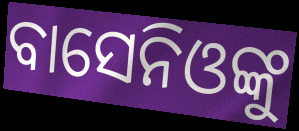
ବାସେନିଓଙ୍କୁ